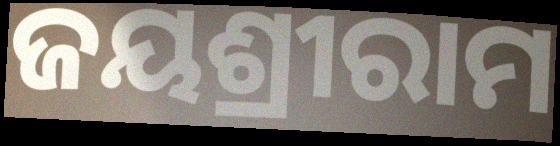
ଜୟଶ୍ରୀରାମ